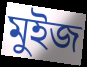
মুইজ